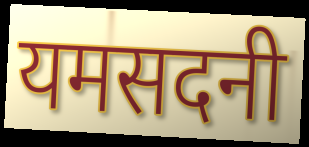
यमसदनी